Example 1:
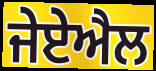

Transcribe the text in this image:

ਜੇਏਐਲ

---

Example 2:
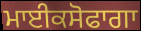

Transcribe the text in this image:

ਮਾਈਕਸੋਫਾਗਾ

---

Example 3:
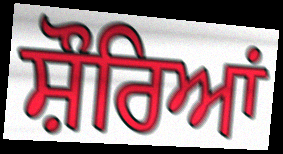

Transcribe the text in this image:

ਸ਼ੌਰਿਆਂ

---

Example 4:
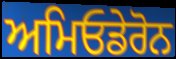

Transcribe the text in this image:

ਅਮਿਓਡੇਰੋਨ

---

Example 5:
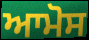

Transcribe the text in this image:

ਆਮੋਸ